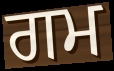
ਗਮ